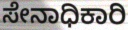
ಸೇನಾಧಿಕಾರಿ